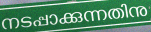
നടപ്പാക്കുന്നതിനു